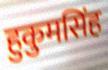
हुकुमसिंह